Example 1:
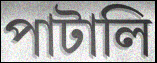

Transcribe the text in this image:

পাটালি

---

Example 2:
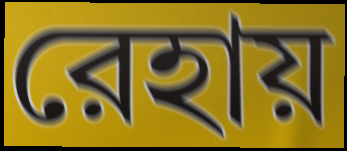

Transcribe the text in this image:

রেহায়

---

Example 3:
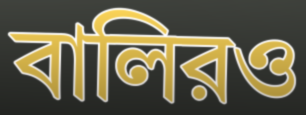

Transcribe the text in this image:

বালিরও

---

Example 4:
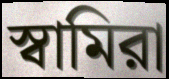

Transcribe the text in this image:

স্বামিরা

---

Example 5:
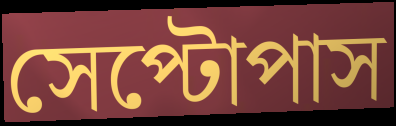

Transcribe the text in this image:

সেপ্টোপাস